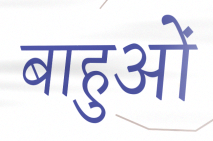
बाहुओं